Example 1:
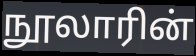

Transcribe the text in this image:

நூலாரின்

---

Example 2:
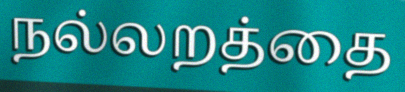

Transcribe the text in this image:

நல்லறத்தை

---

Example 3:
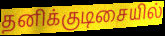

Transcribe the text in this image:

தனிக்குடிசையில்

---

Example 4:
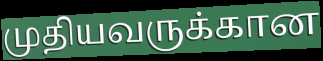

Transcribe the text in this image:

முதியவருக்கான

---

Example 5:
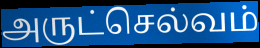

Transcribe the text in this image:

அருட்செல்வம்